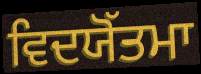
ਵਿਦਯੋੱਤਮਾ